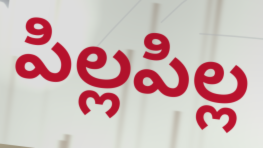
పిల్లపిల్ల